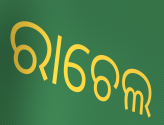
ରାଚେଲ